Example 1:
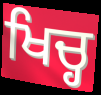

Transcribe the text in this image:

ਖਿਚ੍ਹ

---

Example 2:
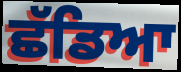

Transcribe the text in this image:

ਛੱਡਿਆ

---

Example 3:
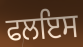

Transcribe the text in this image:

ਫਲਇਸ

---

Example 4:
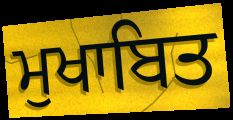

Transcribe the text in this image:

ਮੁਖਾਬਿਤ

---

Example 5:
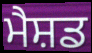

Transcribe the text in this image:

ਮੈਸ਼ਡ